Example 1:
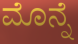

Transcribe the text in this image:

ಮೊನ್ನೆ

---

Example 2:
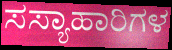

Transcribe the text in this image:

ಸಸ್ಯಾಹಾರಿಗಳ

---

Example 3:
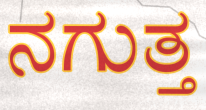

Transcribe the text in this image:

ನಗುತ್ತ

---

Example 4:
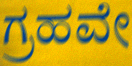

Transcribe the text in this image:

ಗ್ರಹವೇ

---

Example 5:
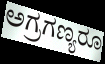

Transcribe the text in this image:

ಅಗ್ರಗಣ್ಯರೂ